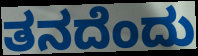
ತನದೆಂದು